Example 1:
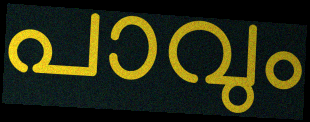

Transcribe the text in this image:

പാവും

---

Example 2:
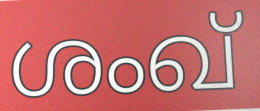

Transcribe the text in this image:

ശംഖ്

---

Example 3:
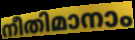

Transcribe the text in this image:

നീതിമാനാം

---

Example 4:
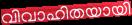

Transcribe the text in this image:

വിവാഹിതയായി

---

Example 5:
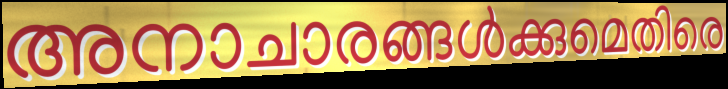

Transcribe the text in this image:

അനാചാരങ്ങൾക്കുമെതിരെ